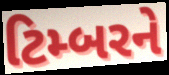
ટિમ્બરને